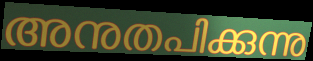
അനുതപിക്കുന്നു